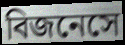
বিজনেসে